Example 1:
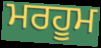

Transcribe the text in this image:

ਮਰਹੂਮ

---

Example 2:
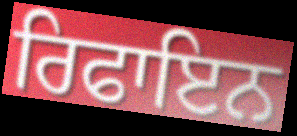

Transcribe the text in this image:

ਰਿਫਾਇਨ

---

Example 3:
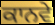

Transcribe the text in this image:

ਕਾਨਵੇ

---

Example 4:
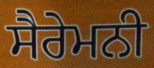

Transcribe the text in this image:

ਸੈਰੇਮਨੀ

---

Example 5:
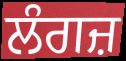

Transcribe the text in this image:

ਲੰਗਜ਼